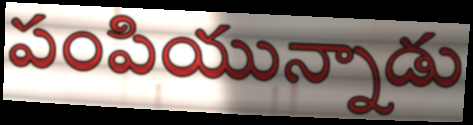
పంపియున్నాడు